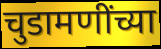
चुडामणींच्या